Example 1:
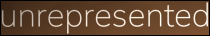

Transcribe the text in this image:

unrepresented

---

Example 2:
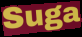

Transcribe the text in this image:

Suga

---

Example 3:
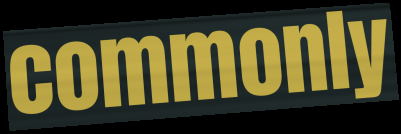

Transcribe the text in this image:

commonly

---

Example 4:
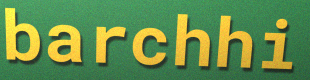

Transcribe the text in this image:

barchhi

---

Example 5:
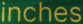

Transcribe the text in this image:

inches